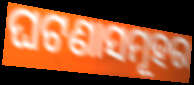
ଘଟଣାସମୂହର